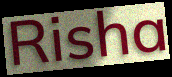
Risha